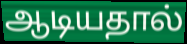
ஆடியதால்